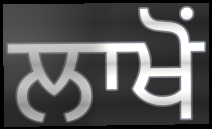
ਲਾਖੋਂ